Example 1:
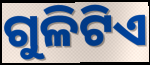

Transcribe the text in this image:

ଗୁଳିଟିଏ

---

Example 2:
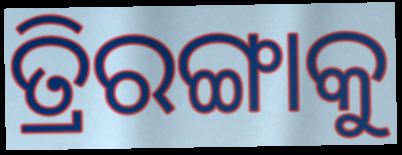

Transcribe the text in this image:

ତ୍ରିରଙ୍ଗାକୁ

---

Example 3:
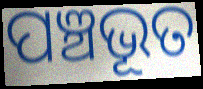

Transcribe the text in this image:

ପଞ୍ଚଭୂତ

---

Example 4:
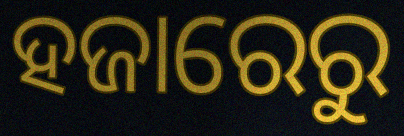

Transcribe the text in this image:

ହଜାରେରୁ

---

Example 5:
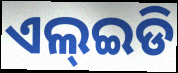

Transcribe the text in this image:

ଏଲ୍ଇଡି